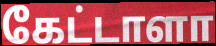
கேட்டாளா